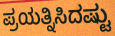
ಪ್ರಯತ್ನಿಸಿದಷ್ಟು